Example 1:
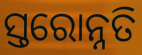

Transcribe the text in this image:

ସ୍ତରୋନ୍ନତି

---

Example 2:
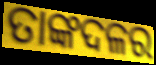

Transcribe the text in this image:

ତାଙ୍କଦଳର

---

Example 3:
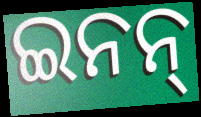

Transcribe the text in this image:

ଇନନ୍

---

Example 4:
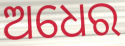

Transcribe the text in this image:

ଅଧେର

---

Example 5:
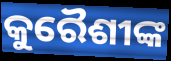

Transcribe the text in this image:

କୁରୈଶୀଙ୍କ